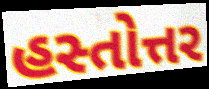
હસ્તોત્તર